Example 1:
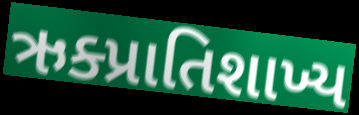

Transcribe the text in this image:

ઋક્પ્રાતિશાખ્ય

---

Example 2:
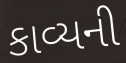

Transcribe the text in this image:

કાવ્યની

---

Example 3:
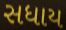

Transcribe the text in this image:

સધાય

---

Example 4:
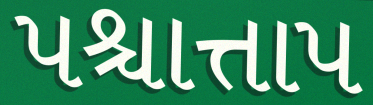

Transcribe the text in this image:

પશ્ચાત્તાપ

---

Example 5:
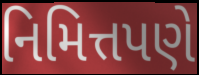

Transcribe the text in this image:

નિમિત્તપણે